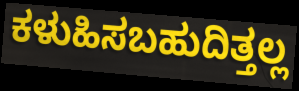
ಕಳುಹಿಸಬಹುದಿತ್ತಲ್ಲ